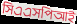
সিএএসপিআই